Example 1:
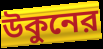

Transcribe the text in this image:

উকুনের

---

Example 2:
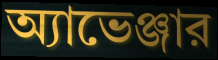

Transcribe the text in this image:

অ্যাভেঞ্জার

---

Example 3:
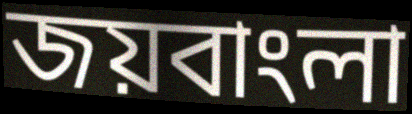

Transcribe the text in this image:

জয়বাংলা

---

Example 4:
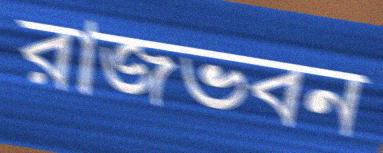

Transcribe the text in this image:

রাজভবন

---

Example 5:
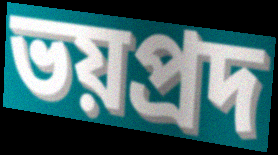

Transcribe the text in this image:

ভয়প্রদ